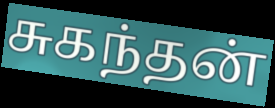
சுகந்தன்